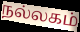
நல்லகம்